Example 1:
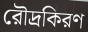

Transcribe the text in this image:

রৌদ্রকিরণ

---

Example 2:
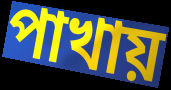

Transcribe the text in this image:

পাখায়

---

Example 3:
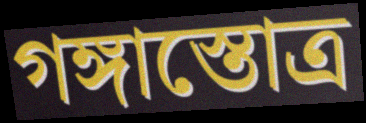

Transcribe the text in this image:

গঙ্গাস্তোত্র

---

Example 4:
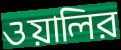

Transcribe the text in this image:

ওয়ালির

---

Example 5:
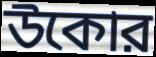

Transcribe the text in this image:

উকোর